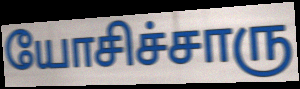
யோசிச்சாரு